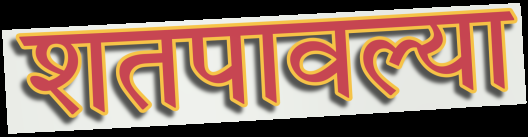
शतपावल्या